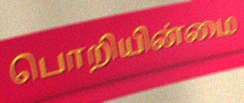
பொறியின்மை